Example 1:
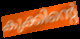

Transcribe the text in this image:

കുക്കിന്റെ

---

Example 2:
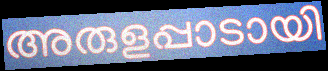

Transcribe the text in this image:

അരുളപ്പാടായി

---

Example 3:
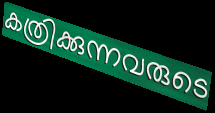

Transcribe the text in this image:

കത്രിക്കുന്നവരുടെ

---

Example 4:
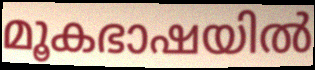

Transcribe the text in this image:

മൂകഭാഷയിൽ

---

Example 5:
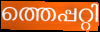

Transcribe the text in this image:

ത്തെപ്പറ്റി